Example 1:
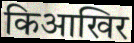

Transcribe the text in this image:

किआखिर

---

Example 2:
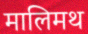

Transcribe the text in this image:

मालिमथ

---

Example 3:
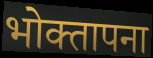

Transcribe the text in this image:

भोक्तापना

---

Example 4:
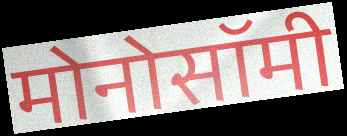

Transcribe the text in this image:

मोनोसॉमी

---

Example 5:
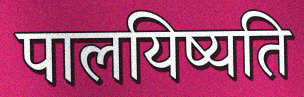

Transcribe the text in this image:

पालयिष्यति